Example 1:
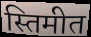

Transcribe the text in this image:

स्तिमीत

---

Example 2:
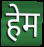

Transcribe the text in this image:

हेम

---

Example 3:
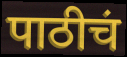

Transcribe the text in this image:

पाठीचं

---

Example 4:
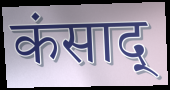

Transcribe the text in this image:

कंसाद्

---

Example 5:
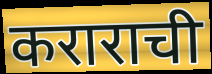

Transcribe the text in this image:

कराराची